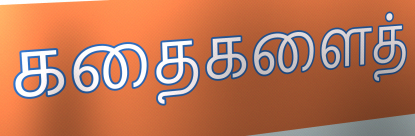
கதைகளைத்